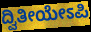
ದ್ವಿತೀಯೇಽಪಿ